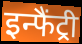
इन्फैंट्री